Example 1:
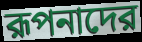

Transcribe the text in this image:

রূপনাদের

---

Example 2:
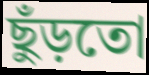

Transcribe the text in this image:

ছুঁড়তো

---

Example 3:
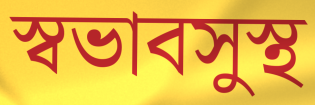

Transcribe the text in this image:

স্বভাবসুস্থ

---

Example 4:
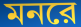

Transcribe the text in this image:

মনরে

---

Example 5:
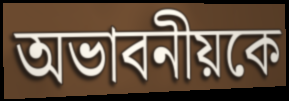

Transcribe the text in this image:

অভাবনীয়কে